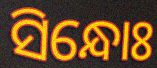
ସିନ୍ଧୋଃ